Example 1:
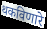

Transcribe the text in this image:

थकविणारे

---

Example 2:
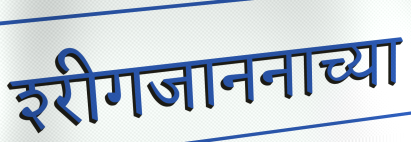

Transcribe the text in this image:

श्रीगजाननाच्या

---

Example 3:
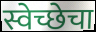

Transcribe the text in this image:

स्वेच्छेचा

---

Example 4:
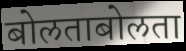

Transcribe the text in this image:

बोलताबोलता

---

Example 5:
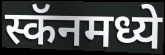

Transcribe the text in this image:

स्कॅनमध्ये